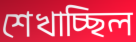
শেখাচ্ছিল